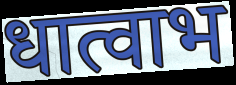
धात्वाभ